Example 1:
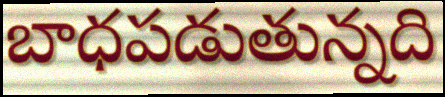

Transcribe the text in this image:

బాధపడుతున్నది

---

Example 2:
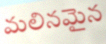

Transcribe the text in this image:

మలినమైన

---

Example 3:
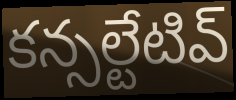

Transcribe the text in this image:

కన్సల్టేటివ్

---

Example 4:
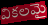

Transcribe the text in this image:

వికలమై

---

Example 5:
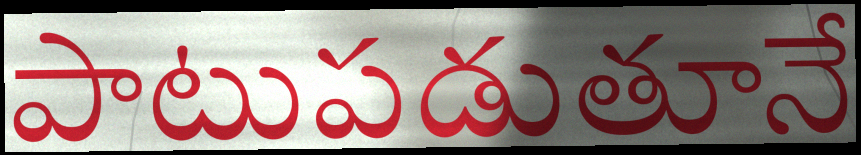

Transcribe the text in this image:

పాటుపడుతూనే